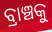
ବ୍ରାଞ୍ଚକୁ